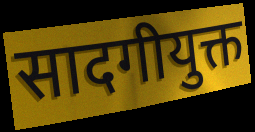
सादगीयुक्त